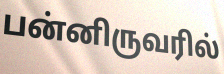
பன்னிருவரில்